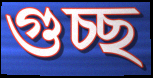
গুচ্ছ